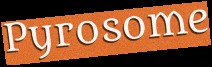
Pyrosome